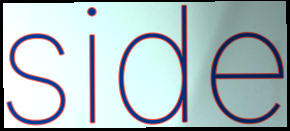
side